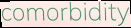
comorbidity